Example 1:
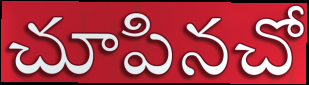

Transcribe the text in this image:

చూపినచో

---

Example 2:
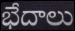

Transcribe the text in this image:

భేదాలు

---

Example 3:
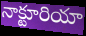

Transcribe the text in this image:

నాక్టూరియా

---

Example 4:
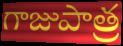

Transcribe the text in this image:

గాజుపాత్ర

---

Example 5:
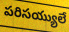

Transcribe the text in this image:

పరిసయ్యులే